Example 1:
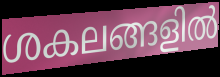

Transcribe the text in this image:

ശകലങ്ങളിൽ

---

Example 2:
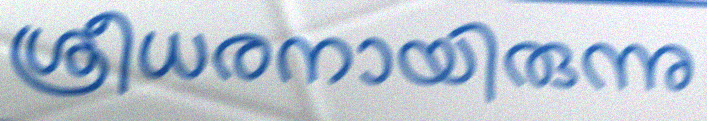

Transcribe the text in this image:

ശ്രീധരനായിരുന്നു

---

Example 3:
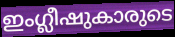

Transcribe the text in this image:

ഇംഗ്ലീഷുകാരുടെ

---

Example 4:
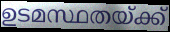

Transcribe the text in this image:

ഉടമസ്ഥതയ്ക്ക്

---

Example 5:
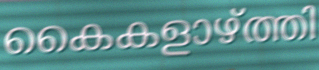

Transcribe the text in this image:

കൈകളാഴ്ത്തി